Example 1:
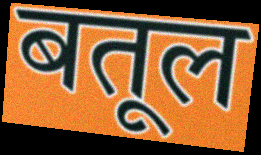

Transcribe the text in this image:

बतूल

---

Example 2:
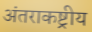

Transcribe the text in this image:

अंतराकष्ट्रीय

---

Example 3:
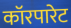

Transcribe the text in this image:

कॉरपारेट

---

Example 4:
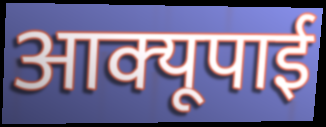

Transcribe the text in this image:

आक्यूपाई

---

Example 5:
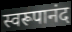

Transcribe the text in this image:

स्वरूपानंद